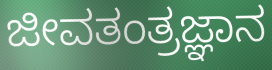
ಜೀವತಂತ್ರಜ್ಞಾನ